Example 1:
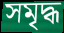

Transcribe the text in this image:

সমৃদ্ধ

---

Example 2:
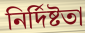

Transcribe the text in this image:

নিৰ্দিষ্টতা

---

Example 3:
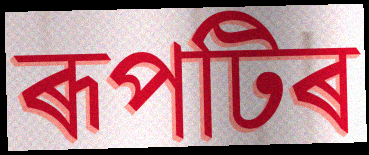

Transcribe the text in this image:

ৰূপটিৰ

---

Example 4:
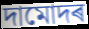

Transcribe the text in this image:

দামোদৰ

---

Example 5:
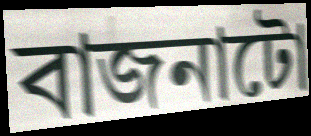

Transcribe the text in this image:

বাজনাটো